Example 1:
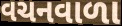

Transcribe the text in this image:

વચનવાળા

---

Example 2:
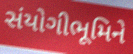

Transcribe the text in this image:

સંયોગીભૂમિને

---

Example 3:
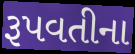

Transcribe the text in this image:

રૂપવતીના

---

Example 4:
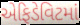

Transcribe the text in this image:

એફિડેવિટમાં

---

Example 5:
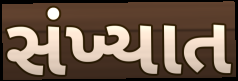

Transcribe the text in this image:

સંખ્યાત